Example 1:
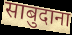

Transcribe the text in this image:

साबुदाना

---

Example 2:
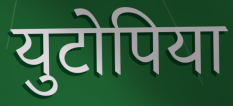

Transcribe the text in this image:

युटोपिया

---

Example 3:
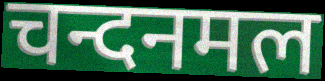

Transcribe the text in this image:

चन्दनमल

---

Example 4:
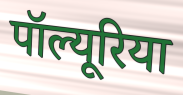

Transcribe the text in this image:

पॉल्यूरिया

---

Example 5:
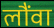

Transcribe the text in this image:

लौंवा